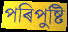
পৰিপুষ্টি